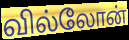
வில்லோன்